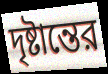
দৃষ্টান্তের